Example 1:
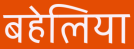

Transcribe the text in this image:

बहेलिया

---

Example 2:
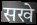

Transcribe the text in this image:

सखे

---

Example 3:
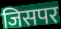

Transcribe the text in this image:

जिसपर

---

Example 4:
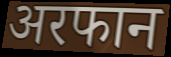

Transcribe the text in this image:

अरफान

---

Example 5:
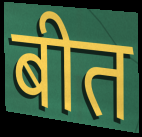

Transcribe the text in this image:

बीत